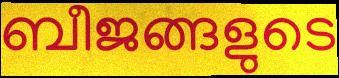
ബീജങ്ങളുടെ